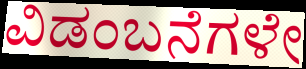
ವಿಡಂಬನೆಗಳೇ